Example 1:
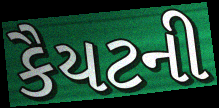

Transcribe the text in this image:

કૈયટની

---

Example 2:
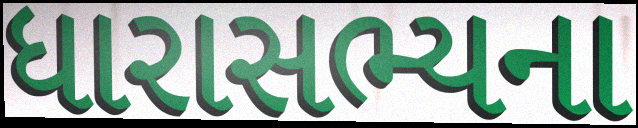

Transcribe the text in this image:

ધારાસભ્યના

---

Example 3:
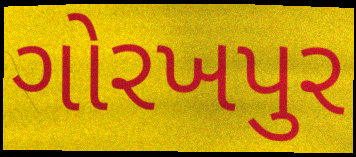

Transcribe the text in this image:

ગોરખપુર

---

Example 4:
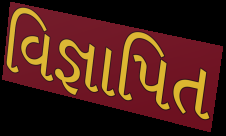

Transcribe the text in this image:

વિજ્ઞાપિત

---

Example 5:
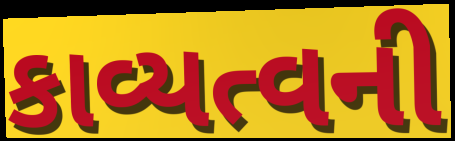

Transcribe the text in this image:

કાવ્યત્વની